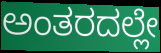
ಅಂತರದಲ್ಲೇ